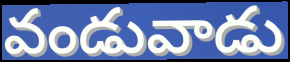
వండువాడు